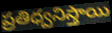
ప్రతిధ్వనిస్తాయి